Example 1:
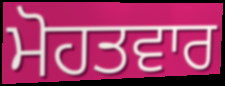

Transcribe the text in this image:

ਮੋਹਤਵਾਰ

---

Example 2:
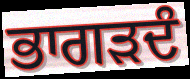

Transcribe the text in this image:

ਭਾਗੜਦੰ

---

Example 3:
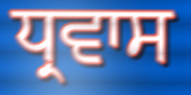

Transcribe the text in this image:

ਧ੍ਰਵਾਸ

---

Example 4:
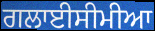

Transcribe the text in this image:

ਗਲਾਈਸੀਮੀਆ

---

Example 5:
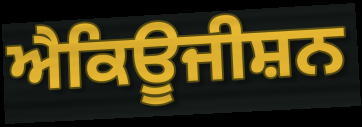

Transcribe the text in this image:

ਐਕਿਊਜੀਸ਼ਨ